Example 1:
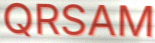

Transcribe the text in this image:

QRSAM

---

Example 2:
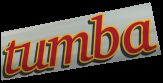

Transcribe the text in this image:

tumba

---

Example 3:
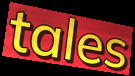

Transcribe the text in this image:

tales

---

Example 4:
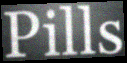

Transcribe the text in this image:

Pills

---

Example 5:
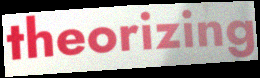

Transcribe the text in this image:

theorizing